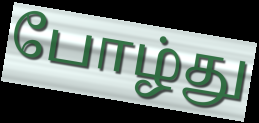
போழ்து